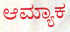
ಆಮ್ಯಾಕ